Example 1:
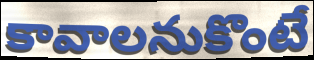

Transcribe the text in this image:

కావాలనుకొంటే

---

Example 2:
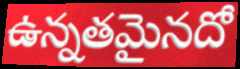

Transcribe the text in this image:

ఉన్నతమైనదో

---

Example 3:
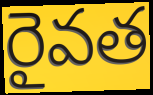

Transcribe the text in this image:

రైవత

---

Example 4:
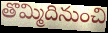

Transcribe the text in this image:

తొమ్మిదినుంచి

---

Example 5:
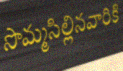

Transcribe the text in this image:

సొమ్మసిల్లినవారికి